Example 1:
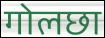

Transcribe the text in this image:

गोलछा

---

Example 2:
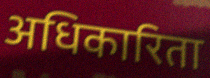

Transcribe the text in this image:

अधिकारिता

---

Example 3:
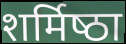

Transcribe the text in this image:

शर्मिष्‍ठा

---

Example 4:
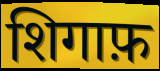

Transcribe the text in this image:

शिगाफ़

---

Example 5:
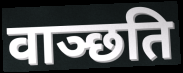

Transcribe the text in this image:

वाञ्छति